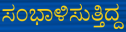
ಸಂಭಾಳಿಸುತ್ತಿದ್ದ